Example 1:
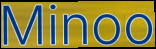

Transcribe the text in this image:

Minoo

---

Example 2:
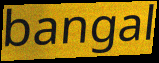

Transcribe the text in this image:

bangal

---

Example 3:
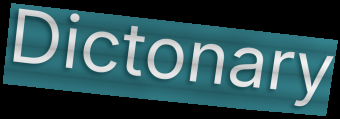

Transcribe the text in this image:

Dictonary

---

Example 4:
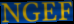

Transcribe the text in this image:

NGEF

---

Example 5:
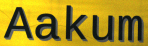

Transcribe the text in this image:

Aakum